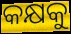
କକ୍ଷକୁ